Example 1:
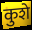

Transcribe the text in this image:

कुशे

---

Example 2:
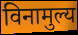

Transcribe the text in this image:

विनामुल्य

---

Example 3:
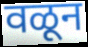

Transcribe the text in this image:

वळून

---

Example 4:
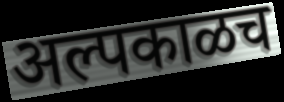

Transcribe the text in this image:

अल्पकाळच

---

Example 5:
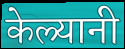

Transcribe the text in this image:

केल्यानी